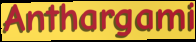
Anthargami